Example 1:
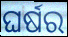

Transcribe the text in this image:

ଘର୍ଷର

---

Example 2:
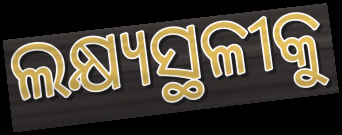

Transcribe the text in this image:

ଲକ୍ଷ୍ୟସ୍ଥଳୀକୁ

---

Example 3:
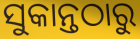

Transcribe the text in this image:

ସୁକାନ୍ତଠାରୁ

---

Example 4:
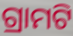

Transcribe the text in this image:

ଗ୍ରାମଟି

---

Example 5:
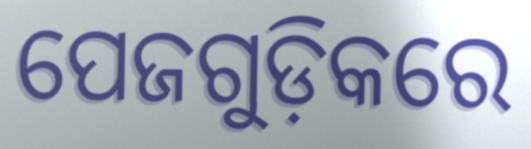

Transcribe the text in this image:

ପେଜଗୁଡ଼ିକରେ